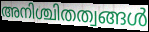
അനിശ്ചിതത്വങ്ങൾ